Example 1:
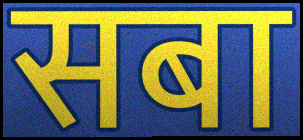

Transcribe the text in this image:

सबा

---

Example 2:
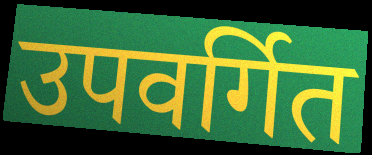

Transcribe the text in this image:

उपवर्गित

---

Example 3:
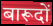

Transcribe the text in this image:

बारूदों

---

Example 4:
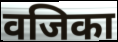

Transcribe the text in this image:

वजिका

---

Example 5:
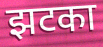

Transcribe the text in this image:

झटका